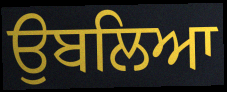
ਉਬਲਿਆ